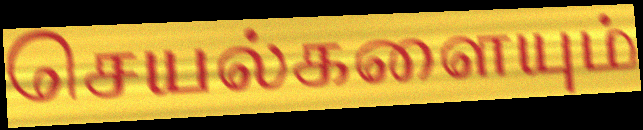
செயல்களையும்